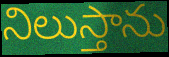
నిలుస్తాను